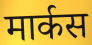
मार्कस